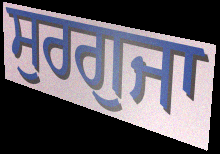
ਸੁਰਗੁਜਾ